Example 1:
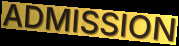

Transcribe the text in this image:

ADMISSION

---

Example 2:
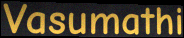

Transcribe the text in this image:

Vasumathi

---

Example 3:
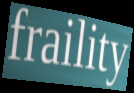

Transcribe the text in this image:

fraility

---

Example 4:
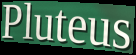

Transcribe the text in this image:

Pluteus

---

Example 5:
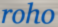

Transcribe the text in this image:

roho